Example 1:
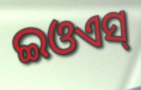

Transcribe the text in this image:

ଇଓଏସ୍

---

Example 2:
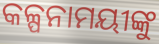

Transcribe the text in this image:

କଳ୍ପନାମୟୀଙ୍କୁ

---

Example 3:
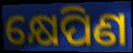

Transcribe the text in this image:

କ୍ଷେପିଣ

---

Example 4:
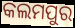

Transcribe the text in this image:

କଲମପୁର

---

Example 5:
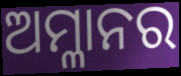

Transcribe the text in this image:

ଅମ୍ଳାନର